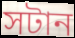
সটান